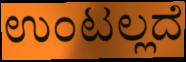
ಉಂಟಲ್ಲದೆ